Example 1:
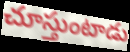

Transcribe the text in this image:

చూస్తుంటాడు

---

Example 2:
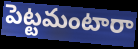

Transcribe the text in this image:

పెట్టమంటారా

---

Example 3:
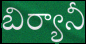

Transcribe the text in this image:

బిర్యానీ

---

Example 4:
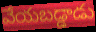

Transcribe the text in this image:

వేయబడ్డాడు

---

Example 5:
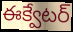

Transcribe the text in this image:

ఈక్వేటర్